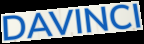
DAVINCI